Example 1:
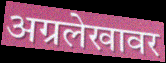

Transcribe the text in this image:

अग्रलेखावर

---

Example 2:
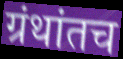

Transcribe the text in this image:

ग्रंथांतच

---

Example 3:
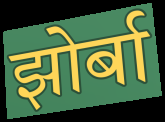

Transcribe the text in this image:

झोर्बा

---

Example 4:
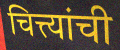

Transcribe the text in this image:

चित्त्यांची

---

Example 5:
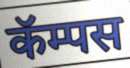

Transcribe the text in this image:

कॅम्पस